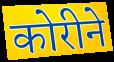
कोरीने